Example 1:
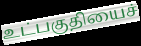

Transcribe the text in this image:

உட்பகுதியைச்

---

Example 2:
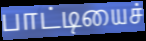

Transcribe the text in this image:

பாட்டியைச்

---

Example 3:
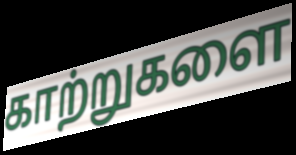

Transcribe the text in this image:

காற்றுகளை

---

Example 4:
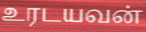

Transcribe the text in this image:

உரடயவன்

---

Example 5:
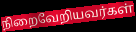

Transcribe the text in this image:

நிறைவேறியவர்கள்